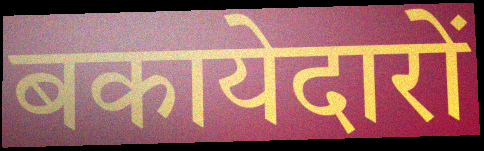
बकायेदारों